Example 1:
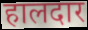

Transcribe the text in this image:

हालदार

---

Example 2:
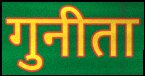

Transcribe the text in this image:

गुनीता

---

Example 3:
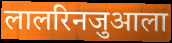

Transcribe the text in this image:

लालरिनजुआला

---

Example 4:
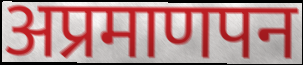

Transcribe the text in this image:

अप्रमाणपन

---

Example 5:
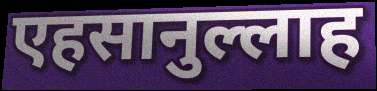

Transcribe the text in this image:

एहसानुल्लाह